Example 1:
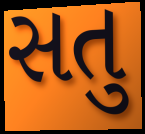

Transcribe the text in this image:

સતુ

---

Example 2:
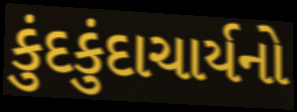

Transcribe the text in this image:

કુંદકુંદાચાર્યનો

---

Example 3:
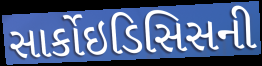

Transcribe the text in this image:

સાર્કોઇડિસિસની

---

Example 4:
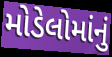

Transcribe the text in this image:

મોડેલોમાંનું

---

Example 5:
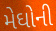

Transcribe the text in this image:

મેઘોની